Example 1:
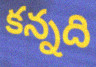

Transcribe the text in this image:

కన్నది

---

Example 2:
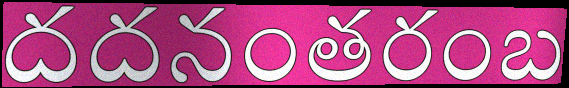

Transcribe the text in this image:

దదనంతరంబ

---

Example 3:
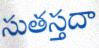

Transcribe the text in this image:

సుతస్తదా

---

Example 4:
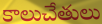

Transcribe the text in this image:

కాలుచేతులు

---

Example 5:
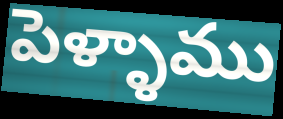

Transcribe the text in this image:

పెళ్ళాము